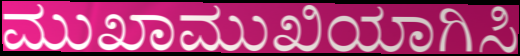
ಮುಖಾಮುಖಿಯಾಗಿಸಿ